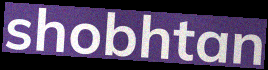
shobhtan